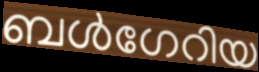
ബൾഗേറിയ